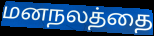
மனநலத்தை